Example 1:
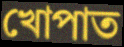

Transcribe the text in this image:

খোপাত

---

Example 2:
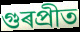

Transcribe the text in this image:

গুৰপ্ৰীত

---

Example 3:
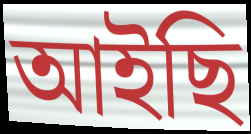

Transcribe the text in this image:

আইছি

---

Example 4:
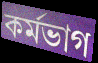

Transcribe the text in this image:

কৰ্মভাগ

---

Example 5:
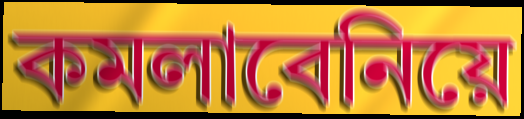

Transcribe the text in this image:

কমলাবেনিয়ে